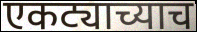
एकट्याच्याच